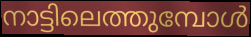
നാട്ടിലെത്തുമ്പോൾ